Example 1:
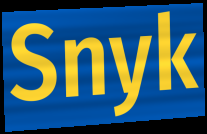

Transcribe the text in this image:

Snyk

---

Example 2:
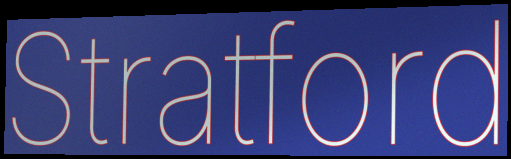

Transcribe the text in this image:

Stratford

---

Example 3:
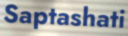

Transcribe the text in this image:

Saptashati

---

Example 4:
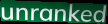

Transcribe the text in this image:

unranked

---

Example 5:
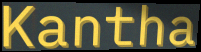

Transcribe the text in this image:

Kantha